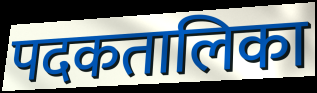
पदकतालिका